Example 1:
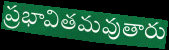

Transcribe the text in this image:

ప్రభావితమవుతారు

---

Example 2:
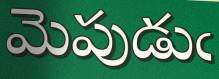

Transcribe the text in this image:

మెపుడుఁ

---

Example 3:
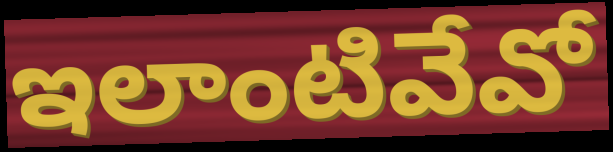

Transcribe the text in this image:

ఇలాంటివేవో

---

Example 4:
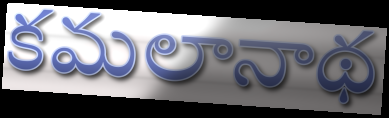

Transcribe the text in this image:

కమలానాథ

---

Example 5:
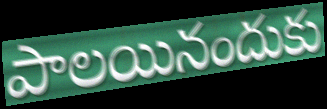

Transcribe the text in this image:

పాలయినందుకు